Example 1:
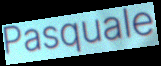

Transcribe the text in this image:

Pasquale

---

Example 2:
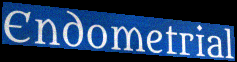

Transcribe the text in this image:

Endometrial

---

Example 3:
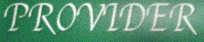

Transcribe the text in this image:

PROVIDER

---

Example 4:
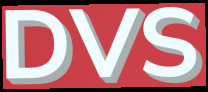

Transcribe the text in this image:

DVS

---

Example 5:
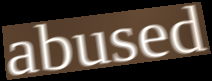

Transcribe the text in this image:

abused